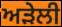
ਅੜੇਲੀ